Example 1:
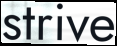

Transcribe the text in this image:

strive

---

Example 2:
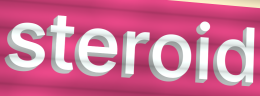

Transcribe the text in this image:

steroid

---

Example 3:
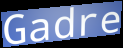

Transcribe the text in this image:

Gadre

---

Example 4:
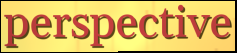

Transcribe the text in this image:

perspective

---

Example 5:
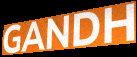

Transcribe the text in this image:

GANDH